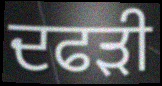
ਦਫੜੀ